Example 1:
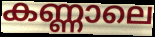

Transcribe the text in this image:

കണ്ണാലെ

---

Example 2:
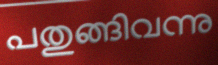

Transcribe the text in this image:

പതുങ്ങിവന്നു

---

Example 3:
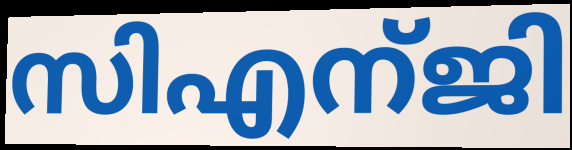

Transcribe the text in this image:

സിഎന്ജി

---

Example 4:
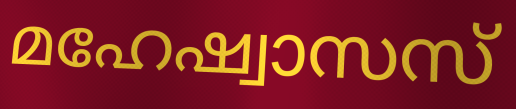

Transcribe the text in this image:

മഹേഷ്വാസസ്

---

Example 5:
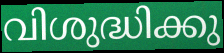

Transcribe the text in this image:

വിശുദ്ധിക്കു